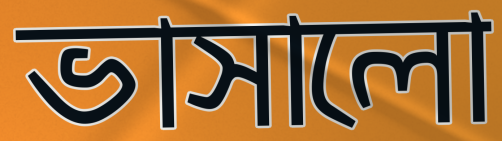
ভাসালো